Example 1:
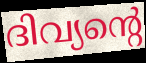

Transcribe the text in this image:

ദിവ്യന്റെ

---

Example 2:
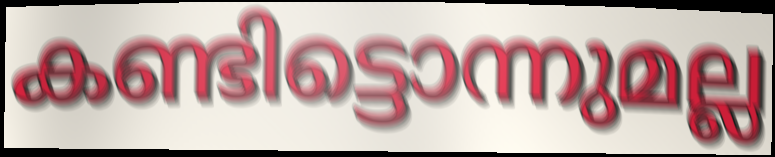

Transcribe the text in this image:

കണ്ടിട്ടൊന്നുമല്ല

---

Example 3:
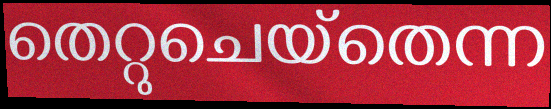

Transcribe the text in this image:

തെറ്റുചെയ്‌തെന്ന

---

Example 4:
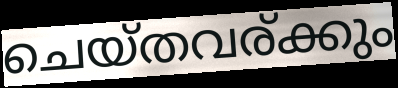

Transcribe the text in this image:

ചെയ്തവര്ക്കും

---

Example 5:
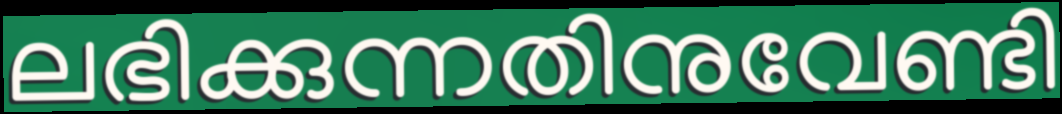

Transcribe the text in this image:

ലഭിക്കുന്നതിനുവേണ്ടി